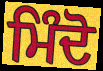
ਮਿੰਦੋ